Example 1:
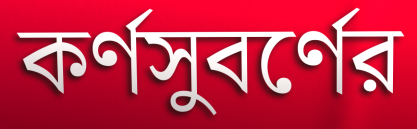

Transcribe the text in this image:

কর্ণসুবর্ণের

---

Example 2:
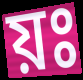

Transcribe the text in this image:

য়ঃ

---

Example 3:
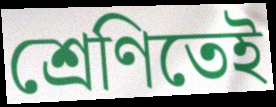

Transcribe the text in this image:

শ্রেণিতেই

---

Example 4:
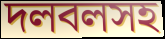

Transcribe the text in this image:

দলবলসহ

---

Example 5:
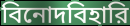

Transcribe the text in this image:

বিনোদবিহারি